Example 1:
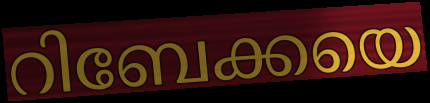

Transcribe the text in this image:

റിബേക്കയെ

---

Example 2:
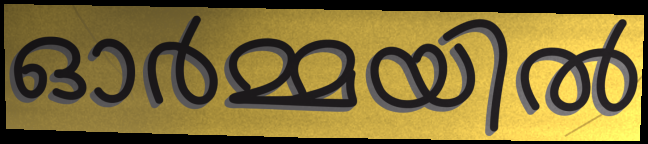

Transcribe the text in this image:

ഓർമ്മയിൽ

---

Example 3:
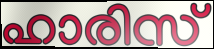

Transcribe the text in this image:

ഹാരിസ്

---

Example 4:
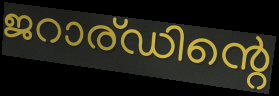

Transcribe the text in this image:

ജറാര്ഡിന്റെ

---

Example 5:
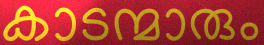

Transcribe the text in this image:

കാടന്മാരും